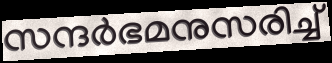
സന്ദർഭമനുസരിച്ച്